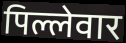
पिल्लेवार